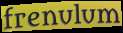
frenulum